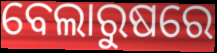
ବେଲାରୁଷରେ